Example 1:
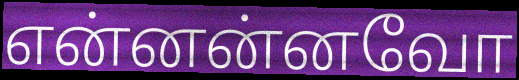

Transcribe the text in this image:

என்னன்னவோ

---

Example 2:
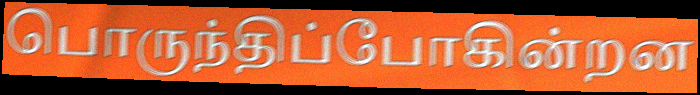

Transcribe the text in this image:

பொருந்திப்போகின்றன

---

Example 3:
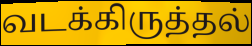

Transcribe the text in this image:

வடக்கிருத்தல்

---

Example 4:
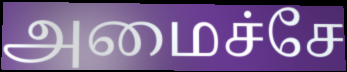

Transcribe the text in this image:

அமைச்சே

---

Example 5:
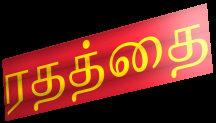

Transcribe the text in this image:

ரதத்தை